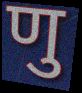
णु